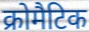
क्रोमैटिक